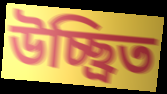
উচ্ছ্রিত